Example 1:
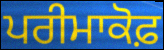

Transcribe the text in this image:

ਪਰੀਮਾਕੋਫ਼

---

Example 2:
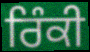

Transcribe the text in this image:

ਰਿੰਕੀ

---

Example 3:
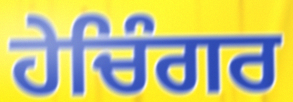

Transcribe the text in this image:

ਹੇਚਿੰਗਰ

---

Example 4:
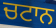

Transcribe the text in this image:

ਚਟਾਨ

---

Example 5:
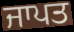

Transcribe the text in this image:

ਜਾਪਤ